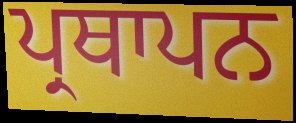
ਪ੍ਰਥਾਪਨ